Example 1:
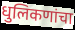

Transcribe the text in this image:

धुलिकणांचा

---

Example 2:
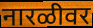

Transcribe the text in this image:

नारळीवर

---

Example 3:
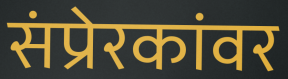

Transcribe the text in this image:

संप्रेरकांवर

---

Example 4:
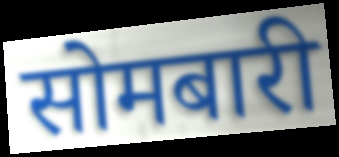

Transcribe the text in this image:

सोमबारी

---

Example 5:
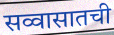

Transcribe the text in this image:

सव्वासातची